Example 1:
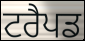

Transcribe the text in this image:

ਟਰੈਪਡ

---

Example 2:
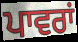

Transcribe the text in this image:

ਪਾਵਰਾਂ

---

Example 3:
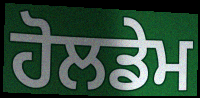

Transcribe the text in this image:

ਹੋਲਡੇਮ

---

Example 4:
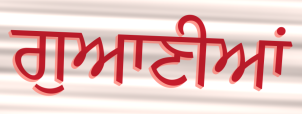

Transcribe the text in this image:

ਗੁਆਣੀਆਂ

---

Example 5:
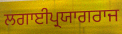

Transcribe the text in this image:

ਲਗਾਈਪ੍ਰਯਾਗਰਾਜ